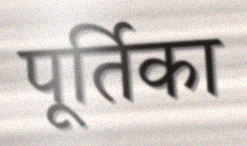
पूर्तिका